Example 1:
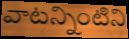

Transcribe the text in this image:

వాటన్నింటిని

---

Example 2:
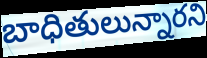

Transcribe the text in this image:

బాధితులున్నారని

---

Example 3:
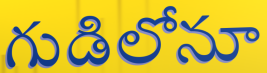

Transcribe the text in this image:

గుడిలోనూ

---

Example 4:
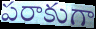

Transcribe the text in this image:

పరాకుగా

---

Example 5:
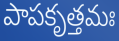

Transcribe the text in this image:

పాపకృత్తమః